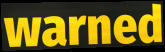
warned